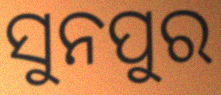
ସୁନପୁର